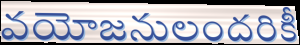
వయోజనులందరికీ